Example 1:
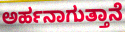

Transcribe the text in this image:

ಅರ್ಹನಾಗುತ್ತಾನೆ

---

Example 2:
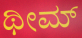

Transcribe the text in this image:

ಥೀಮ್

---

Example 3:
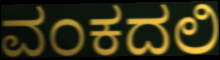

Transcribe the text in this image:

ವಂಕದಲಿ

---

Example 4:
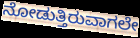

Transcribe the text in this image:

ನೋಡುತ್ತಿರುವಾಗಲೇ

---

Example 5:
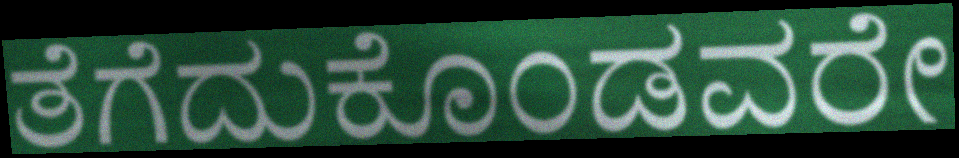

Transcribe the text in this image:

ತೆಗೆದುಕೊಂಡವರೇ